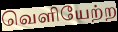
வெளியேற்ற